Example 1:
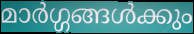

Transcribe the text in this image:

മാർഗ്ഗങ്ങൾക്കും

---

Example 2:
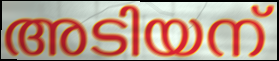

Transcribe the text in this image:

അടിയന്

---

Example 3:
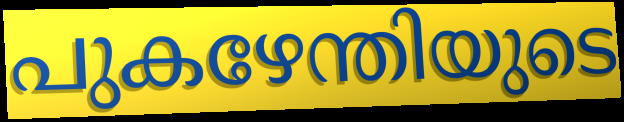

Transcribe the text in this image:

പുകഴേന്തിയുടെ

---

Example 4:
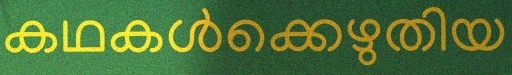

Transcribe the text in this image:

കഥകൾക്കെഴുതിയ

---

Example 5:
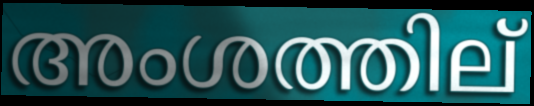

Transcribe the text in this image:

അംശത്തില്